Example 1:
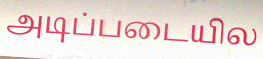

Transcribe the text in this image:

அடிப்படையில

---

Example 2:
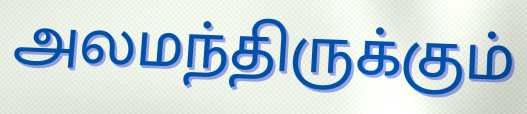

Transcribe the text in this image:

அலமந்திருக்கும்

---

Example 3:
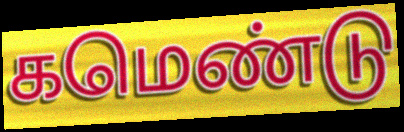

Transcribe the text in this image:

கமெண்டு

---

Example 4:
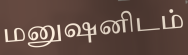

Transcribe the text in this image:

மனுஷனிடம்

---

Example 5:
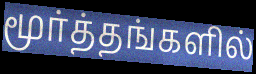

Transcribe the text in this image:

மூர்த்தங்களில்